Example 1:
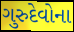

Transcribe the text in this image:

ગુરુદેવોના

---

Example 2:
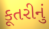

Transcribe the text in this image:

કૂતરીનું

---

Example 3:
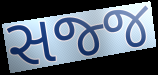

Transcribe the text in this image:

સજ્જ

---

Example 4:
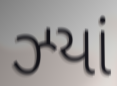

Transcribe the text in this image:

ઝ્યાં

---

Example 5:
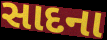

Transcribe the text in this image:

સાદના